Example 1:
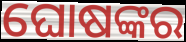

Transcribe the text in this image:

ଘୋଷଙ୍କର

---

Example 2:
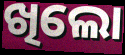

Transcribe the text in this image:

ଖିଲୋ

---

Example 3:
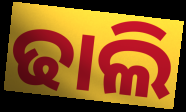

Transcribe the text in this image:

ଢାଲି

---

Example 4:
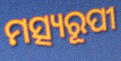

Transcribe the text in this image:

ମତ୍ସ୍ୟରୂପୀ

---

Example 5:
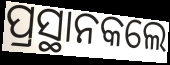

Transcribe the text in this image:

ପ୍ରସ୍ଥାନକଲେ